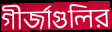
গীর্জাগুলির